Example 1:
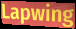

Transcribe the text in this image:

Lapwing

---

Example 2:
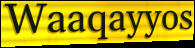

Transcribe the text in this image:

Waaqayyos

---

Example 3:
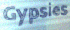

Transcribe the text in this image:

Gypsies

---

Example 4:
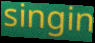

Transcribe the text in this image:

singin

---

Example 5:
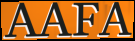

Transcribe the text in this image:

AAFA